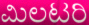
ಮಿಲಟರಿ